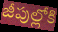
జీపుల్లోకి